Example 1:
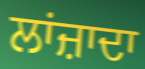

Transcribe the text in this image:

ਲਾਂਜ਼ਾਦਾ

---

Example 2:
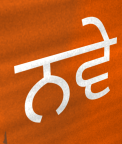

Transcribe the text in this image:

ਨਵੇ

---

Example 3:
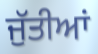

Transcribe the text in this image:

ਜੁੱਤੀਆਂ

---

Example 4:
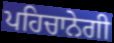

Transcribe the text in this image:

ਪਹਿਚਾਨੇਗੀ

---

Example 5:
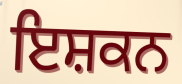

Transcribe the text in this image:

ਇਸ਼ਕਨ